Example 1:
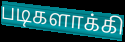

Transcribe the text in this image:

படிகளாக்கி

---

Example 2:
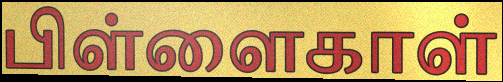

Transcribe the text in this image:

பிள்ளைகாள்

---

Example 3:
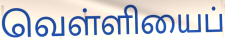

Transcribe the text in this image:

வெள்ளியைப்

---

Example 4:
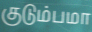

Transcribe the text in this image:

குடும்பமா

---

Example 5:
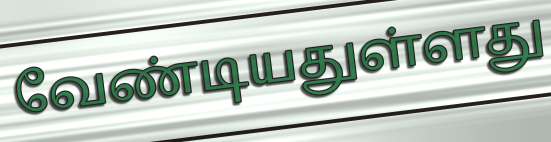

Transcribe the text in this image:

வேண்டியதுள்ளது